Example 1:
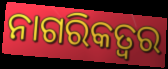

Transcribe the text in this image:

ନାଗରିକତ୍ୱର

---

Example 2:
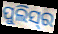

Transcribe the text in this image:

ପୁଲିସ୍‌ର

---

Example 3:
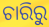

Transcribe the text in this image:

ଚାରିରୁ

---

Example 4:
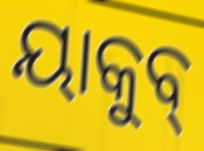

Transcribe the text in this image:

ୟାକୁବ୍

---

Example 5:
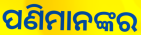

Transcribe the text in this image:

ପଣିମାନଙ୍କର